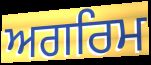
ਅਗਰਿਮ